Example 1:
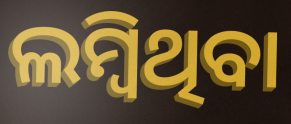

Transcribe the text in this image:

ଲମ୍ବିଥିବା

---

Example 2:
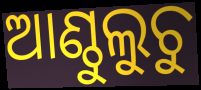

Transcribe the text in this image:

ଆଣ୍ଠୁଲୁଚୁ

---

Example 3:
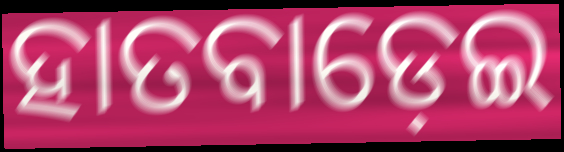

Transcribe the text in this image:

ହାତବାଡ଼େଇ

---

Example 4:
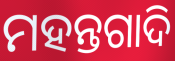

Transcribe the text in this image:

ମହନ୍ତଗାଦି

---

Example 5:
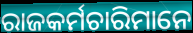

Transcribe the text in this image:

ରାଜକର୍ମଚାରିମାନେ